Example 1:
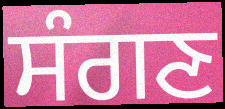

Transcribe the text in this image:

ਸੰਗਣ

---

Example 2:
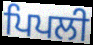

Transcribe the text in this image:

ਪਿਪਲੀ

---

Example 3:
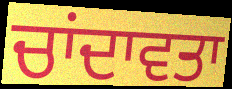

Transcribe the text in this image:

ਚਾਂਦਾਵਤਾ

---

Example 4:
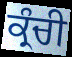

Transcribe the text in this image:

ਕ੍ਰੰਚੀ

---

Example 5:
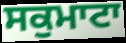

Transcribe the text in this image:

ਸਕੁਮਾਟਾ